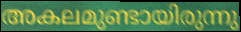
അകലമുണ്ടായിരുന്നു